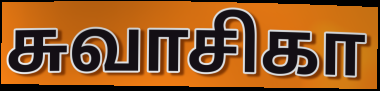
சுவாசிகா